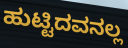
ಹುಟ್ಟಿದವನಲ್ಲ